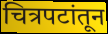
चित्रपटांतून